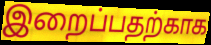
இறைப்பதற்காக